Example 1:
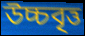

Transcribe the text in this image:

উচ্চবৃত্ত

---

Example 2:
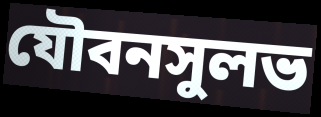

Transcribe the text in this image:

যৌবনসুলভ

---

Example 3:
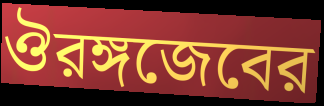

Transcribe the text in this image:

ঔরঙ্গজেবের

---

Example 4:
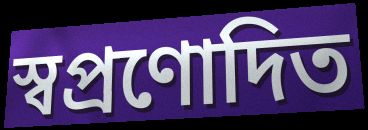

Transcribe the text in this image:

স্বপ্রণোদিত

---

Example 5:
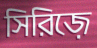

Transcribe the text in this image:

সিরিজ়ে